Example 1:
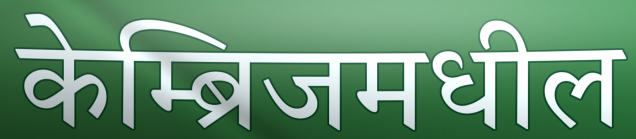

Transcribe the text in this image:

केम्ब्रिजमधील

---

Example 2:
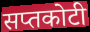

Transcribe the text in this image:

सप्तकोटी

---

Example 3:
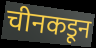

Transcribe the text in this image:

चीनकडून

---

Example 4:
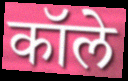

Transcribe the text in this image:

कॉले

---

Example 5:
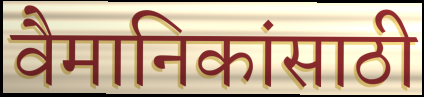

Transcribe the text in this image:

वैमानिकांसाठी